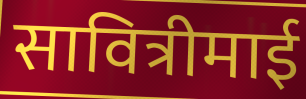
सावित्रीमाई